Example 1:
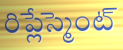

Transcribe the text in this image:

రిప్లేస్మెంట్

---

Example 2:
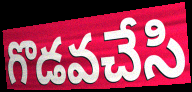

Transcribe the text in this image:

గొడవచేసి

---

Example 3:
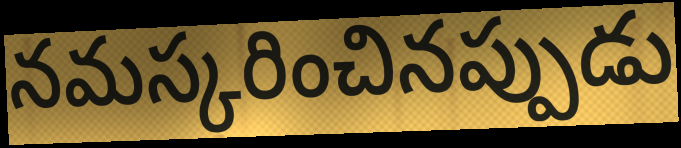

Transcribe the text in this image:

నమస్కరించినప్పుడు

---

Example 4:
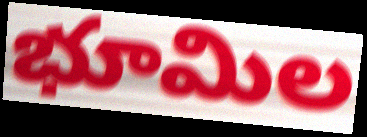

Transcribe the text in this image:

భూమిల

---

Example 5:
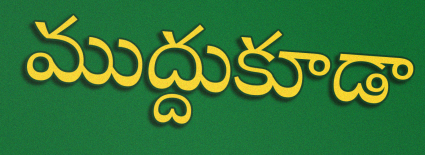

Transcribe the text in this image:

ముద్దుకూడా